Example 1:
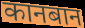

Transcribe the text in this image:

कानबान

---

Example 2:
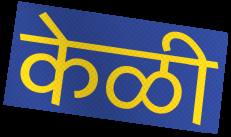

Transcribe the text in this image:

केळी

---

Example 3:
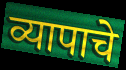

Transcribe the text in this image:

व्यापाचे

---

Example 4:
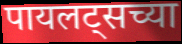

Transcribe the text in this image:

पायलट्सच्या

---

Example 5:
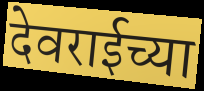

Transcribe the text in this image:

देवराईच्या